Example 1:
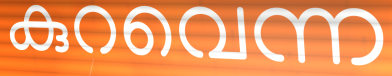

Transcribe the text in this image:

കുറവെന്ന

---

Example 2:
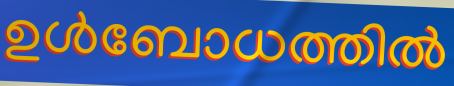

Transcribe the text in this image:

ഉൾബോധത്തിൽ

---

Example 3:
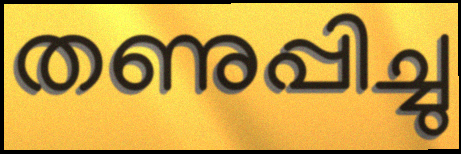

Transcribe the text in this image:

തണുപ്പിച്ചു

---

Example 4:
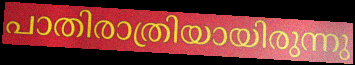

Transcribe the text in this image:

പാതിരാത്രിയായിരുന്നു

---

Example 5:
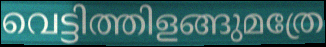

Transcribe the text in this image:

വെട്ടിത്തിളങ്ങുമത്രേ